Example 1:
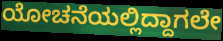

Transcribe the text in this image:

ಯೋಚನೆಯಲ್ಲಿದ್ದಾಗಲೇ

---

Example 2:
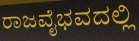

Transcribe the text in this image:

ರಾಜವೈಭವದಲ್ಲಿ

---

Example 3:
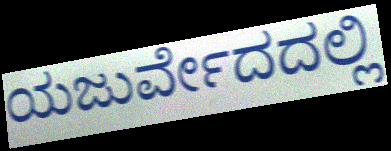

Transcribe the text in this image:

ಯಜುರ್ವೇದದಲ್ಲಿ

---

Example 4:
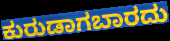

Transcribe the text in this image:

ಕುರುಡಾಗಬಾರದು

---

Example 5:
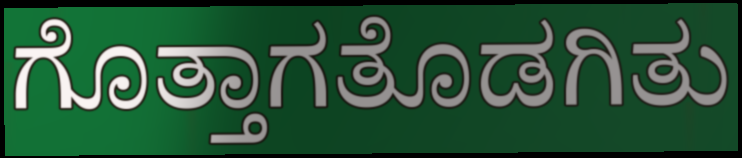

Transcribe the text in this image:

ಗೊತ್ತಾಗತೊಡಗಿತು